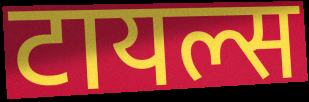
टायल्स